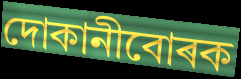
দোকানীবোৰক